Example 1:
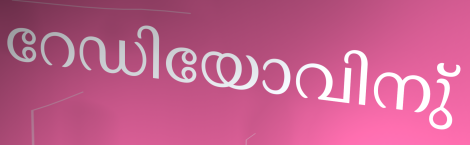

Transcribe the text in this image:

റേഡിയോവിനു്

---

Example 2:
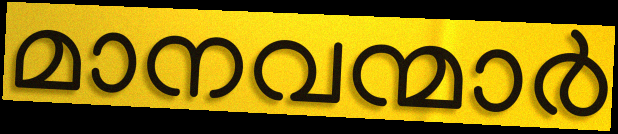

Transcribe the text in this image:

മാനവന്മാർ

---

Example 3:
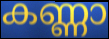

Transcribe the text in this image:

കണ്ണാ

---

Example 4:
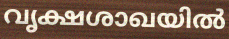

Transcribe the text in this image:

വൃക്ഷശാഖയിൽ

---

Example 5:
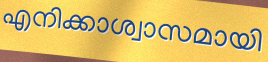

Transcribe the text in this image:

എനിക്കാശ്വാസമായി